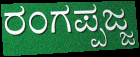
ರಂಗಪ್ಪಜ್ಜ